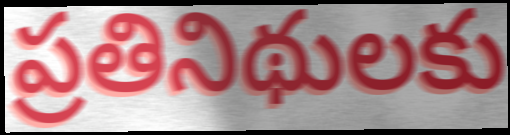
ప్రతినిథులకు